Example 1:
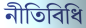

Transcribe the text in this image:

নীতিবিধি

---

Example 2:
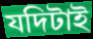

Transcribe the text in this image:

যদিটাই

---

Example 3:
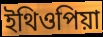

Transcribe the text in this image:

ইথিওপিয়া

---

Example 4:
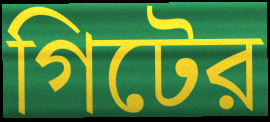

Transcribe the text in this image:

গিটের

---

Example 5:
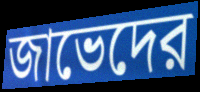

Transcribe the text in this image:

জাভেদের